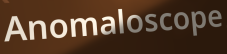
Anomaloscope